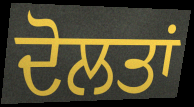
ਦੋਲਤਾਂ